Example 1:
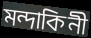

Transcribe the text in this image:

মন্দাকিনী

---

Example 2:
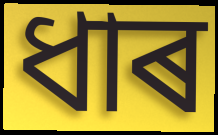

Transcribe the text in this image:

ধাৰ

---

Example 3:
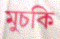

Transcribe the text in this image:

মুচকি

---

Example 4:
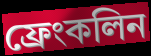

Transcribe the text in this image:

ফ্ৰেংকলিন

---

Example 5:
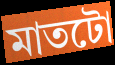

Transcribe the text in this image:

মাতটো